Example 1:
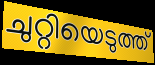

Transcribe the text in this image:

ചുറ്റിയെടുത്ത്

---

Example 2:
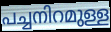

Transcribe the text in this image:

പച്ചനിറമുള്ള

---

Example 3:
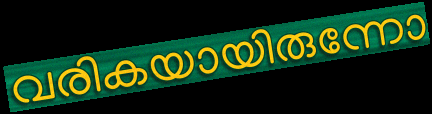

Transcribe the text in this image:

വരികയായിരുന്നോ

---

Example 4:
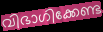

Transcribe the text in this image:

വിഭാഗിക്കേണ്ട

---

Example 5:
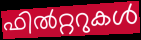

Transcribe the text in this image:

ഫിൽറ്ററുകൾ